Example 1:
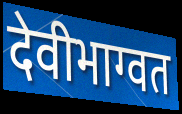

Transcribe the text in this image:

देवीभाग्वत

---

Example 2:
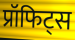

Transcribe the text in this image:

प्रॉफिट्स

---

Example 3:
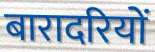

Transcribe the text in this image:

बारादरियों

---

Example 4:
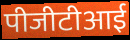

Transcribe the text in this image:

पीजीटीआई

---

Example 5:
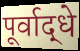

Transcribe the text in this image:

पूर्वाद्धे